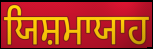
ਯਿਸ਼ਮਾਯਾਹ